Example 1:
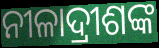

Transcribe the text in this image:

ନୀଳାଦ୍ରୀଶଙ୍କ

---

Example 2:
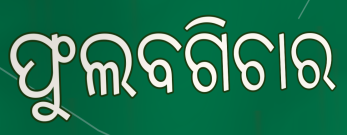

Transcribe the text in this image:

ଫୁଲବଗିଚାର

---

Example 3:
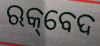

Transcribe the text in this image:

ଋକ୍‌ବେଦ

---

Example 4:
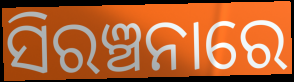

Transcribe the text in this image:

ସିରଞ୍ଚନାରେ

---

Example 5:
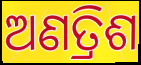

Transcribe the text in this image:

ଅଣତ୍ରିଶ